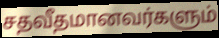
சதவீதமானவர்களும்